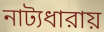
নাট্যধারায়